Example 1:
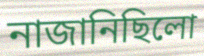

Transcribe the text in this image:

নাজানিছিলো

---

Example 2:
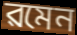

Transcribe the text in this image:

ৱমেন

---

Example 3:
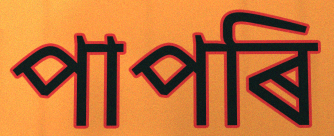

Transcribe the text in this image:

পাপৰি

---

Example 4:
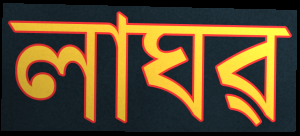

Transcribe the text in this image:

লাঘৱ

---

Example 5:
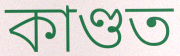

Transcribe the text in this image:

কাণ্ডত